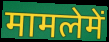
मामलेमें